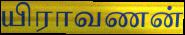
யிராவணன்